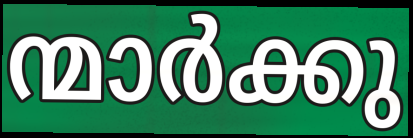
ന്മാർക്കു